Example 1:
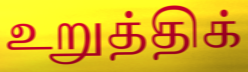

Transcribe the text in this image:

உறுத்திக்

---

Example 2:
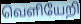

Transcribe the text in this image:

வெளியேறி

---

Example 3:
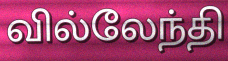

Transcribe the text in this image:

வில்லேந்தி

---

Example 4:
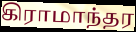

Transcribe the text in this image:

கிராமாந்தர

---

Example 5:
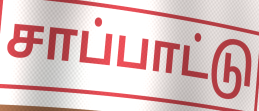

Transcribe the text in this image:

சாப்பாட்டு